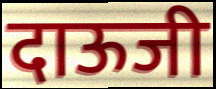
दाऊजी